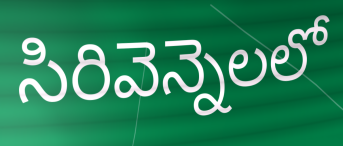
సిరివెన్నెలలో